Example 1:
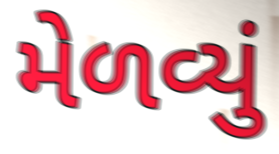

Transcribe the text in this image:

મેળવ્યું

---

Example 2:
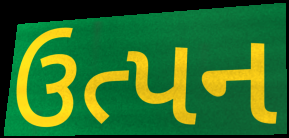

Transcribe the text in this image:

ઉત્પન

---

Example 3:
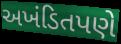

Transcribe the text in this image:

અખંડિતપણે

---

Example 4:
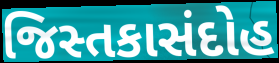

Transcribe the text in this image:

જિસ્તકાસંદોહ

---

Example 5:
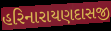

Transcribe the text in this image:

હરિનારાયણદાસજી